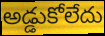
అడ్డుకోలేదు